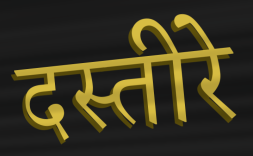
दस्तीरे